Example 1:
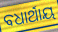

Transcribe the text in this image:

ବଧାର୍ଥାୟ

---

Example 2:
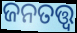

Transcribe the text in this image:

ଜନତତ୍ତ୍ୱ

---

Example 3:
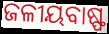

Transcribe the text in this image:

ଜଳୀୟବାଷ୍ଫ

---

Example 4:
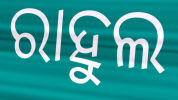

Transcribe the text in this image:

ରାହୁଲ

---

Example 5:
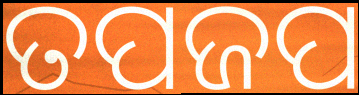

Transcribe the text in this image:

ତପଜପ